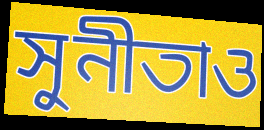
সুনীতাও